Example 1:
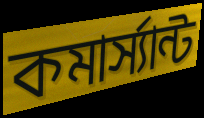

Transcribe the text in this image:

কমার্স্যান্ট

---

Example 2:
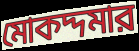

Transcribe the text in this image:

মোকদ্দমার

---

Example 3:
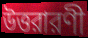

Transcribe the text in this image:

উত্তরারণী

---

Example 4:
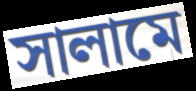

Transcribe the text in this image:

সালামে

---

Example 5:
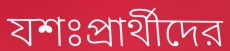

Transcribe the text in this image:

যশঃপ্রার্থীদের